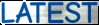
LATEST